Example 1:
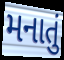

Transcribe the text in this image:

મનાતું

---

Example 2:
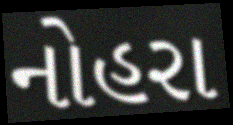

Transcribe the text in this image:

નોહરા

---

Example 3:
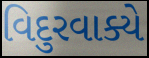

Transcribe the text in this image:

વિદુરવાક્યે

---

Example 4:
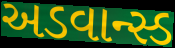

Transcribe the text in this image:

અડવાન્સ્ડ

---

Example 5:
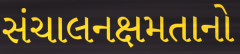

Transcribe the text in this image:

સંચાલનક્ષમતાનો